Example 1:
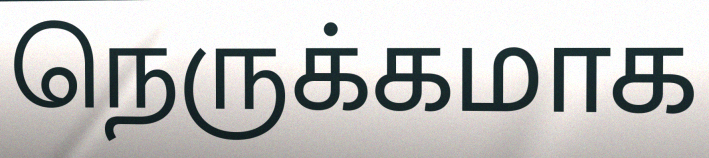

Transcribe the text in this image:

நெருக்கமாக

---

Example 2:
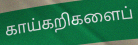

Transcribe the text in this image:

காய்கறிகளைப்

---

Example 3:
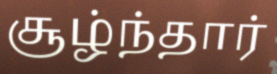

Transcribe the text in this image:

சூழ்ந்தார்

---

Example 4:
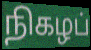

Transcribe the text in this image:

நிகழப்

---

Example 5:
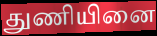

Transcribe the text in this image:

துணியினை